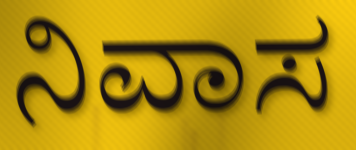
ನಿವಾಸ